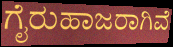
ಗೈರುಹಾಜರಾಗಿವೆ